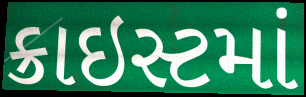
ક્રાઇસ્ટમાં